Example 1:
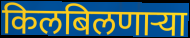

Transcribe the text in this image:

किलबिलणाऱ्या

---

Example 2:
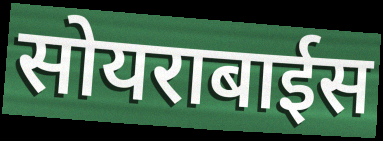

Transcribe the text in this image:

सोयराबाईस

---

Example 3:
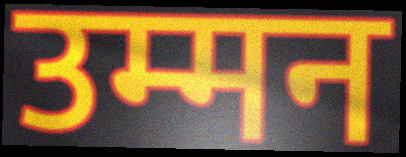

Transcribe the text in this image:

उम्मन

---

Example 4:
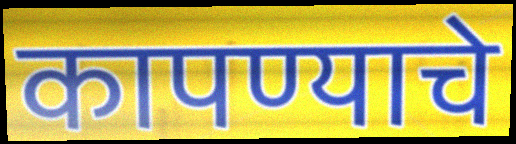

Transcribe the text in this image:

कापण्याचे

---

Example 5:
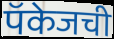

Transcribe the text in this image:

पॅकेजची